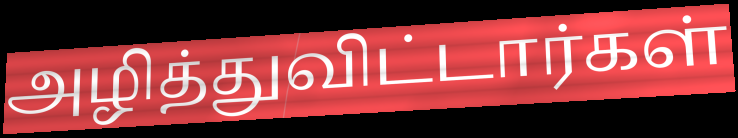
அழித்துவிட்டார்கள்